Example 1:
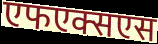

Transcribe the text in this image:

एफएक्सएस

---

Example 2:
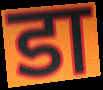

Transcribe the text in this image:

डा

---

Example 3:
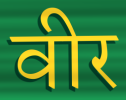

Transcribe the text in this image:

वीर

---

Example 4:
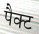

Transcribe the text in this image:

पैक्ट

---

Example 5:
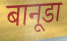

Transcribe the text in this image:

बानूडा